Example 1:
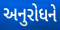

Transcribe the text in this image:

અનુરોધને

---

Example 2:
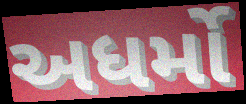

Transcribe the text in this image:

અધર્મો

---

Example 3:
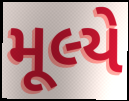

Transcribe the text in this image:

મૂલ્યે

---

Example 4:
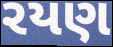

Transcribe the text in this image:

રયણ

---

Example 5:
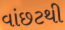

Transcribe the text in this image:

વાંછટથી